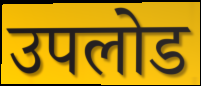
उपलोड